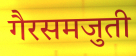
गैरसमजुती